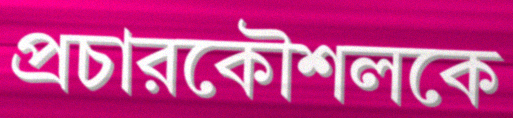
প্রচারকৌশলকে